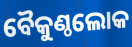
ବୈକୁଣ୍ଠଲୋକ